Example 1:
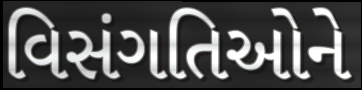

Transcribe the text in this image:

વિસંગતિઓને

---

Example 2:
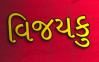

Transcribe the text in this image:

વિજયકુ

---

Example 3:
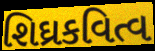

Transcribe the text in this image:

શિઘ્રકવિત્વ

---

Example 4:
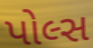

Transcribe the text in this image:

પોલ્સ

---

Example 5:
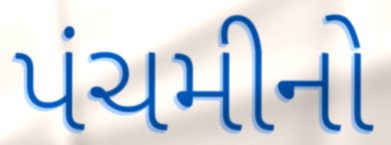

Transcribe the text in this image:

પંચમીનો